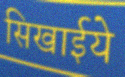
सिखाईये